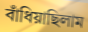
বাঁধিয়াছিলাম